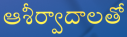
ఆశీర్వాదాలతో